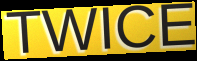
TWICE